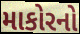
માકોરનો